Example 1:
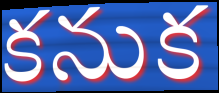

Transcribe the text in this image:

కనుక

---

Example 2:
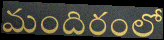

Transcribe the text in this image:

మందిరంలో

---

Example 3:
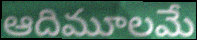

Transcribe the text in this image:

ఆదిమూలమే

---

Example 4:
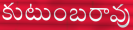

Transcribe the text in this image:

కుటుంబరావు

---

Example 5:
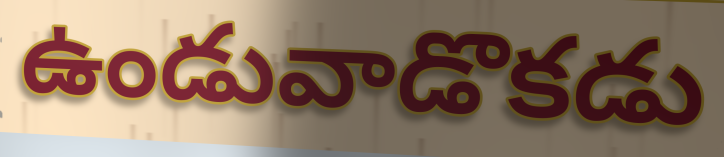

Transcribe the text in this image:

ఉండువాడొకడు